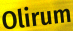
Olirum